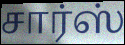
சார்ஸ்